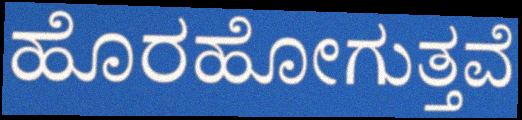
ಹೊರಹೋಗುತ್ತವೆ